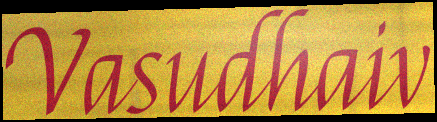
Vasudhaiv